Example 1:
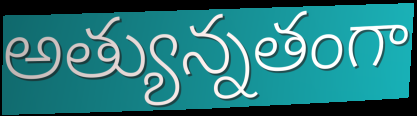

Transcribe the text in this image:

అత్యున్నతంగా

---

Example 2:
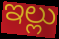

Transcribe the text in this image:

ఇల్లు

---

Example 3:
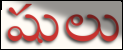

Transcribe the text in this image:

షులు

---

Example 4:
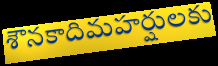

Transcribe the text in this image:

శౌనకాదిమహర్షులకు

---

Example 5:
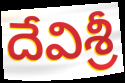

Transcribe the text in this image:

దేవిశ్రీ